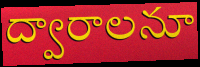
ద్వారాలనూ